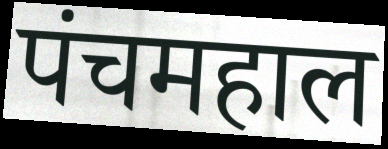
पंचमहाल